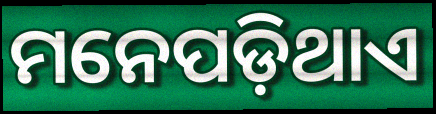
ମନେପଡ଼ିଥାଏ